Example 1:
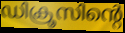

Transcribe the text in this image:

ഡിക്രൂസിന്റെ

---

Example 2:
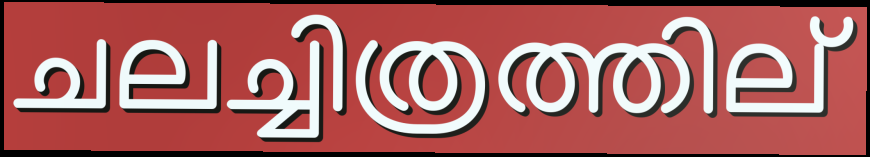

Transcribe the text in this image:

ചലച്ചിത്രത്തില്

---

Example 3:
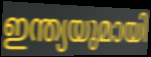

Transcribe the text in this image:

ഇന്ത്യയുമായി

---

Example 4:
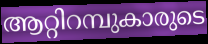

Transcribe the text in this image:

ആറ്റിറമ്പുകാരുടെ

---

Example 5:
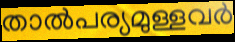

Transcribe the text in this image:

താൽപര്യമുള്ളവർ